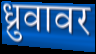
ध्रुवावर